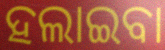
ହଲାଇବା